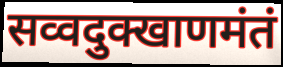
सव्वदुक्खाणमंतं